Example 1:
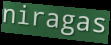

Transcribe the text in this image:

niragas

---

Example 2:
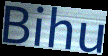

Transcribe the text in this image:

Bihu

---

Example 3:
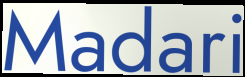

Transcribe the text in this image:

Madari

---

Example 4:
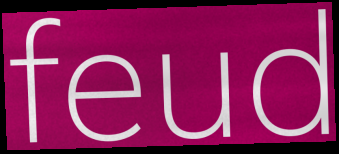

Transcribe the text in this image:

feud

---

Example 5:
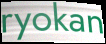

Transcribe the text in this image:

ryokan